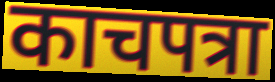
काचपत्रा